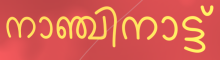
നാഞ്ചിനാട്ട്